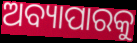
ଅବ୍ୟାପାରକୁ